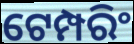
ଟେମ୍ପରିଂ